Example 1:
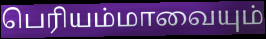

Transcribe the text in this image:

பெரியம்மாவையும்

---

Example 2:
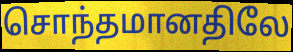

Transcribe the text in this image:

சொந்தமானதிலே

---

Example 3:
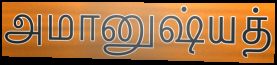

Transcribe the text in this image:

அமானுஷ்யத்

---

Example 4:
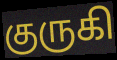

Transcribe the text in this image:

குருகி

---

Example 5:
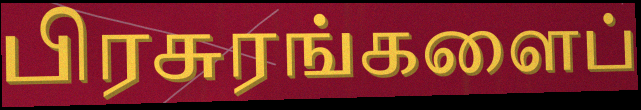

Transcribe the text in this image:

பிரசுரங்களைப்